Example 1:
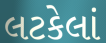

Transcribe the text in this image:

લટકેલાં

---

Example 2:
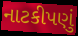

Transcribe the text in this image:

નાટકીપણું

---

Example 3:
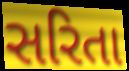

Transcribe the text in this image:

સરિતા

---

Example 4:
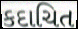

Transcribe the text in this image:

કદાચિત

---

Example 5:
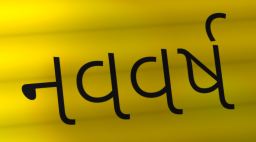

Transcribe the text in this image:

નવવર્ષ